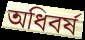
অধিবর্ষ